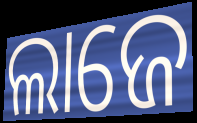
ଲାଜେ